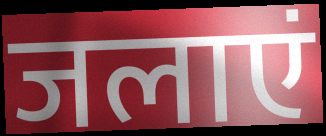
जलाएं